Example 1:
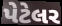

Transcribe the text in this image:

પેટેલર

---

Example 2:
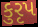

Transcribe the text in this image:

કુરૃપ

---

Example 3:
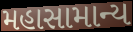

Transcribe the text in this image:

મહાસામાન્ય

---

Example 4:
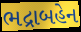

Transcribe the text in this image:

ભદ્રાબહેન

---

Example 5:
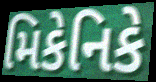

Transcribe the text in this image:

મિકેનિકે